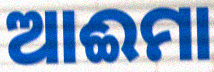
ଆଈମା